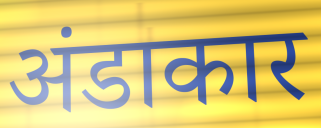
अंडाकार